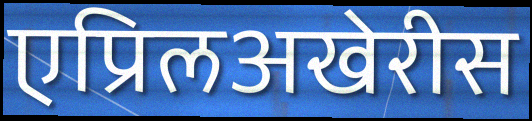
एप्रिलअखेरीस